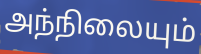
அந்நிலையும்